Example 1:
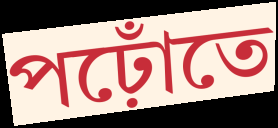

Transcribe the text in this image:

পঢ়োঁতে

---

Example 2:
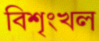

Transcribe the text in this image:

বিশৃংখল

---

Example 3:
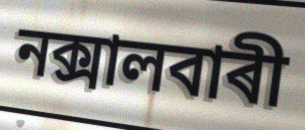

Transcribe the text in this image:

নক্সালবাৰী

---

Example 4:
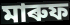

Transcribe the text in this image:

মাৰুফ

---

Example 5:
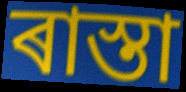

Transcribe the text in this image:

ৰাস্তা